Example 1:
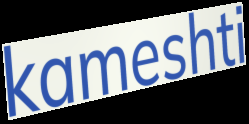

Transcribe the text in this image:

kameshti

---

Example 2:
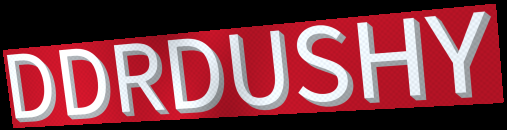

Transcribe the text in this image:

DDRDUSHY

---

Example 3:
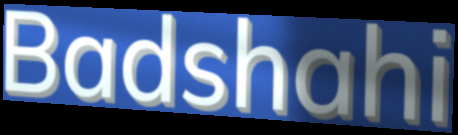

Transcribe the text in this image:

Badshahi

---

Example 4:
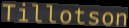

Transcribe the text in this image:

Tillotson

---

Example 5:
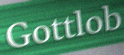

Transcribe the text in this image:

Gottlob